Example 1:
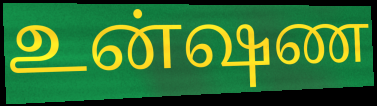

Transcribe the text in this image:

உன்ஷண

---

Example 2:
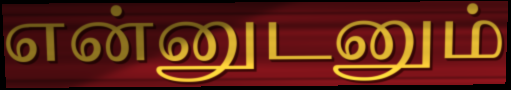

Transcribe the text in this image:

என்னுடனும்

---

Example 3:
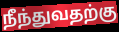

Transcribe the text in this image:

நீந்துவதற்கு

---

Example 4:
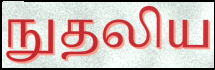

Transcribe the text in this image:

நுதலிய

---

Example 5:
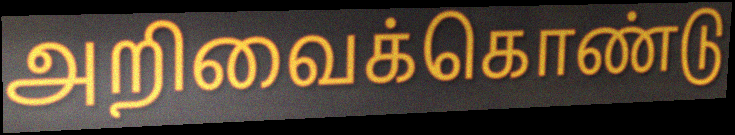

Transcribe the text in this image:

அறிவைக்கொண்டு